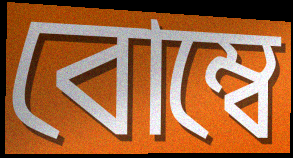
বোম্বে